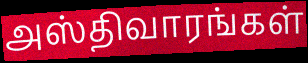
அஸ்திவாரங்கள்